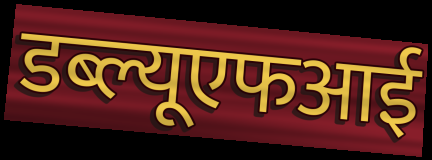
डब्ल्यूएफआई